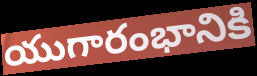
యుగారంభానికి